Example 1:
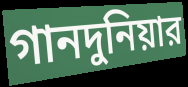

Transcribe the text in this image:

গানদুনিয়ার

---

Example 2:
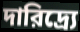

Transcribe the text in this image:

দারিদ্র্যে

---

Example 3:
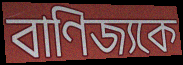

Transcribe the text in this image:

বাণিজ্যকে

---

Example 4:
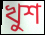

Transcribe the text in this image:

খুশ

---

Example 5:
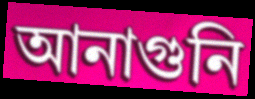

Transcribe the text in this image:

আনাগুনি